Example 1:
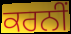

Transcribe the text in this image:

ਕਰਨੀਂ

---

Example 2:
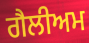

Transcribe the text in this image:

ਗੈਲੀਅਮ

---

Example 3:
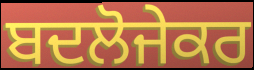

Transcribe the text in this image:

ਬਦਲੋਜੇਕਰ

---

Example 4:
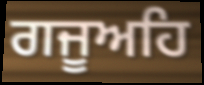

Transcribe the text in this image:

ਗਜੂਅਹਿ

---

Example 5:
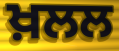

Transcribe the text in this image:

ਖ਼ਲਲ